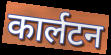
कार्लटन